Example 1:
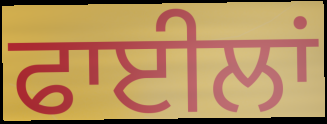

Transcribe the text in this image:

ਫਾਈਲਾਂ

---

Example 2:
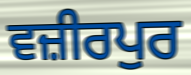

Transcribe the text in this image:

ਵਜ਼ੀਰਪੁਰ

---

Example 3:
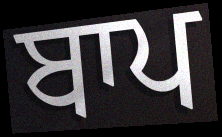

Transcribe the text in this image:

ਬਾਪ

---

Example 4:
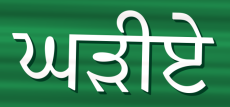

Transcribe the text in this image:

ਘੜੀਏ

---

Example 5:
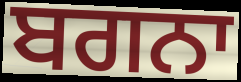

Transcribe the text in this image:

ਬਗਨਾ